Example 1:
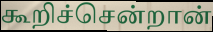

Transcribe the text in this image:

கூறிச்சென்றான்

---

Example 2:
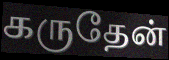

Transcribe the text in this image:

கருதேன்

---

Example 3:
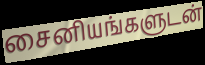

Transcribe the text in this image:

சைனியங்களுடன்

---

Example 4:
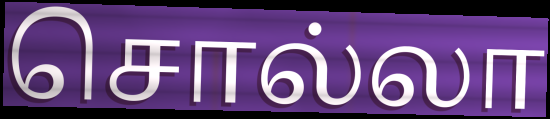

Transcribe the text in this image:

சொல்லா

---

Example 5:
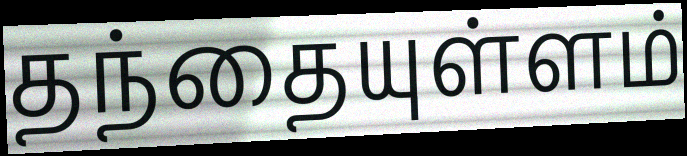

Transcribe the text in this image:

தந்தையுள்ளம்